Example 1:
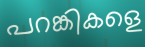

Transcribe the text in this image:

പറങ്കികളെ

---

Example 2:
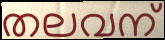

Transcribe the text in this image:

തലവന്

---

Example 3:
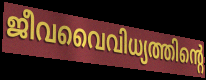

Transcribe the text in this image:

ജീവവൈവിധ്യത്തിന്റെ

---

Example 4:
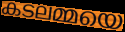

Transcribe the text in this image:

കടലമ്മയെ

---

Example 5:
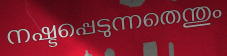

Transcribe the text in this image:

നഷ്ടപ്പെടുന്നതെന്തും